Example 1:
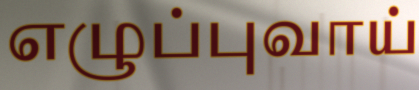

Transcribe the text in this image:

எழுப்புவாய்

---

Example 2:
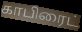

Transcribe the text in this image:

காபிரைட்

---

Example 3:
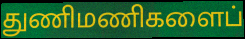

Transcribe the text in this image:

துணிமணிகளைப்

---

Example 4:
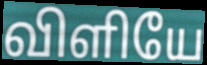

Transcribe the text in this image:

விளியே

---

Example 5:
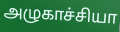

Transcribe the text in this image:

அழுகாச்சியா